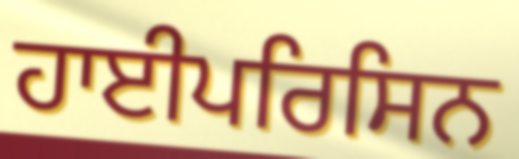
ਹਾਈਪਰਿਸਿਨ